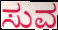
ಸುವ